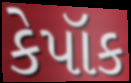
કેપૉક